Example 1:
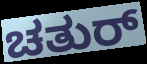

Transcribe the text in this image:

ಚತುರ್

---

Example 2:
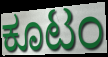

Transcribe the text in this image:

ಕೂಟಂ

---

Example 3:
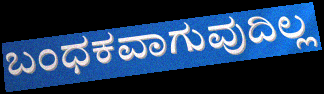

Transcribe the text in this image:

ಬಂಧಕವಾಗುವುದಿಲ್ಲ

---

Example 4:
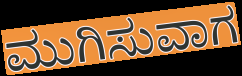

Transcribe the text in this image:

ಮುಗಿಸುವಾಗ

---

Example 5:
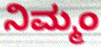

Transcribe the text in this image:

ನಿಮ್ಮಂ